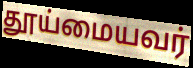
தூய்மையவர்